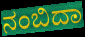
ನಂಬಿದಾ